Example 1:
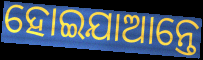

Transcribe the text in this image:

ହୋଇଯାଆନ୍ତେ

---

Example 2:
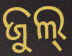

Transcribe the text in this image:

ଜୁଲ୍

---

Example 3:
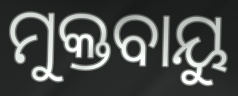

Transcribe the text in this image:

ମୁକ୍ତବାୟୁ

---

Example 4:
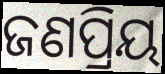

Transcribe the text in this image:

ଜଣପ୍ରିୟ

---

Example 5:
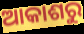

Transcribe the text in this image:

ଆକାଶରୁ